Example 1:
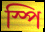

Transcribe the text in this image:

স্পি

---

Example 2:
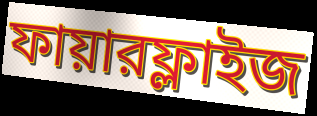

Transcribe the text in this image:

ফায়ারফ্লাইজ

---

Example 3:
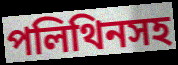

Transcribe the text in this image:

পলিথিনসহ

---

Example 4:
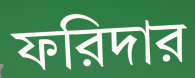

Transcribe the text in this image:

ফরিদার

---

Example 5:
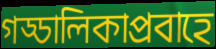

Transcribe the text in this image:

গড্ডালিকাপ্রবাহে